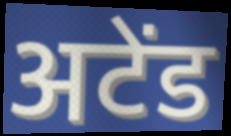
अटेंड